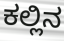
ಕಲ್ಲಿನ